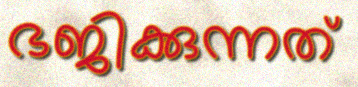
ഭജിക്കുന്നത്